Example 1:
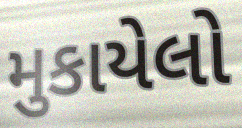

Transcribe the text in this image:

મુકાયેલો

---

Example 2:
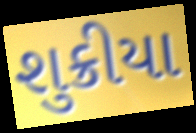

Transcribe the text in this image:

શુક્રીયા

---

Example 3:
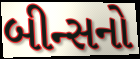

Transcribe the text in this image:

બીન્સનો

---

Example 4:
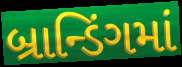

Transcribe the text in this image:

બ્રાન્ડિંગમાં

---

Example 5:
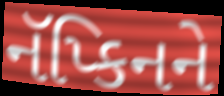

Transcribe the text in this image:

નૅપ્કિનને